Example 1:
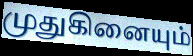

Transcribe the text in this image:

முதுகினையும்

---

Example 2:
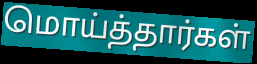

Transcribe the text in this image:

மொய்த்தார்கள்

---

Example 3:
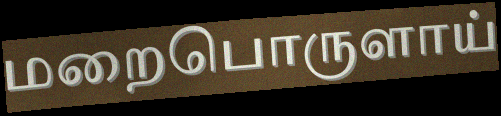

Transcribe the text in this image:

மறைபொருளாய்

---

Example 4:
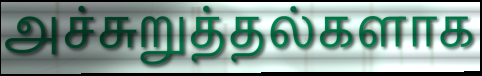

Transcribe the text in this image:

அச்சுறுத்தல்களாக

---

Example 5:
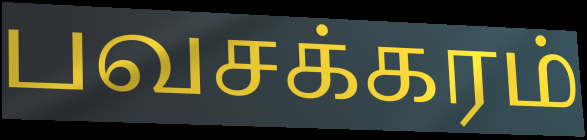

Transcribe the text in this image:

பவசக்கரம்